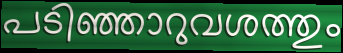
പടിഞ്ഞാറുവശത്തും